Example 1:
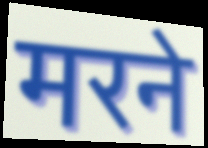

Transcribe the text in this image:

मरने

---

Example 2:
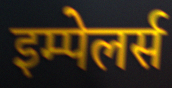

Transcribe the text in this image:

इम्पेलर्स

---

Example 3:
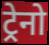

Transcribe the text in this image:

ट्रेनो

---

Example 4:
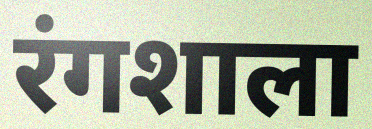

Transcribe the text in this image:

रंगशाला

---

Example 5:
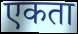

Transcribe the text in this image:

एकता